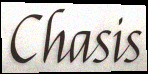
Chasis